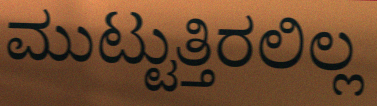
ಮುಟ್ಟುತ್ತಿರಲಿಲ್ಲ